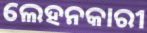
ଲେହନକାରୀ